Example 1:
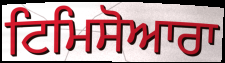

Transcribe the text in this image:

ਟਿਮਿਸੋਆਰਾ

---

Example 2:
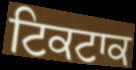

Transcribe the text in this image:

ਟਿਕਟਾਕ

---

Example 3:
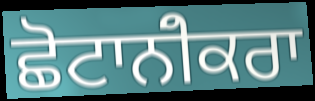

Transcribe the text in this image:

ਛੋਟਾਨੀੱਕਰਾ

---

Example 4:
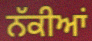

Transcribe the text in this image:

ਨੱਕੀਆਂ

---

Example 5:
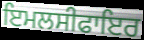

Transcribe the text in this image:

ਇਮਲਸੀਫਾਇਰ